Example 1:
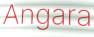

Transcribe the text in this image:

Angara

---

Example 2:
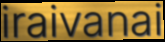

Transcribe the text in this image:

iraivanai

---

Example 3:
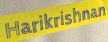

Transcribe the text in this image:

Harikrishnan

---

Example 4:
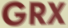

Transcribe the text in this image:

GRX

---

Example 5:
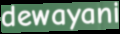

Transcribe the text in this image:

dewayani